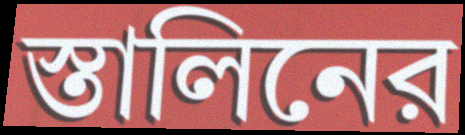
স্তালিনের